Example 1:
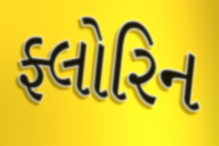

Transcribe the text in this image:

ફ્લોરિન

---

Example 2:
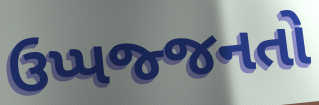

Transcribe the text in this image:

ઉપ્પજ્જનતો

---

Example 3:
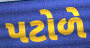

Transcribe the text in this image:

પટોળે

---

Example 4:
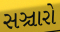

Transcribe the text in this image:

સઞ્ચારો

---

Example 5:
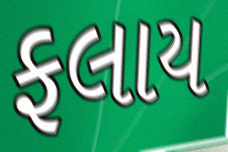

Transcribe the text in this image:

ફલાય